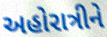
અહોરાત્રીને